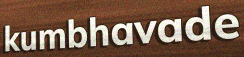
kumbhavade